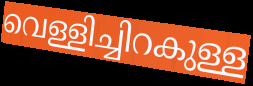
വെള്ളിച്ചിറകുള്ള